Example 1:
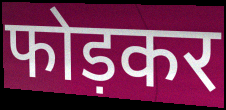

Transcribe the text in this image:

फोड़कर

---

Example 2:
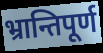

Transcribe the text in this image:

भ्रान्तिपूर्ण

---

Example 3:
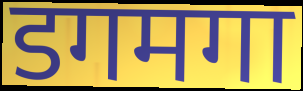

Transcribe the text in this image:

डगमगा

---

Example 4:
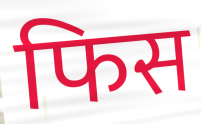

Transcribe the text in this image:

फिस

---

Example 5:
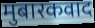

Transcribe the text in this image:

मुबारकवाद